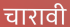
चारावी